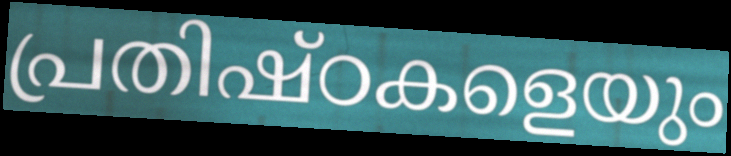
പ്രതിഷ്ഠകളെയും